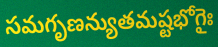
సమగృణన్యుతమష్టభోగైః